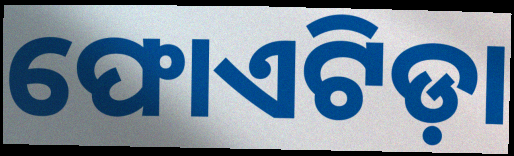
ଫୋଏଟିଡ଼ା